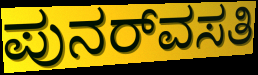
ಪುನರ್‌ವಸತಿ